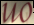
uo